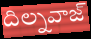
దిల్నవాజ్